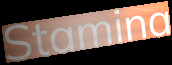
Stamina